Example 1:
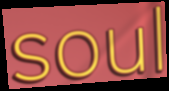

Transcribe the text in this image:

soul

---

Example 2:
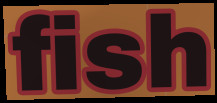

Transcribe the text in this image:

fish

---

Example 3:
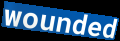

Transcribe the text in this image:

wounded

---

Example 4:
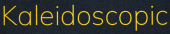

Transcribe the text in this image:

Kaleidoscopic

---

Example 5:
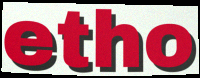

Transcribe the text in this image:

etho